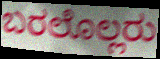
ಬರಲೊಲ್ಲರು